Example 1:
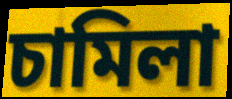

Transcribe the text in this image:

চামিলা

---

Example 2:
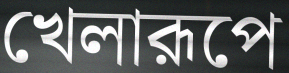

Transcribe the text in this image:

খেলারূপে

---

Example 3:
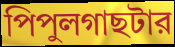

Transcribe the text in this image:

পিপুলগাছটার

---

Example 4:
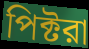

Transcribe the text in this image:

পিক্টরা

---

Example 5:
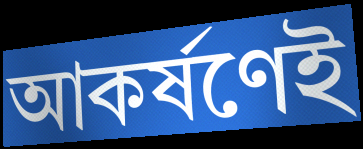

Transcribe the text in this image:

আকর্ষণেই